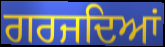
ਗਰਜਦਿਆਂ